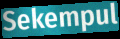
Sekempul